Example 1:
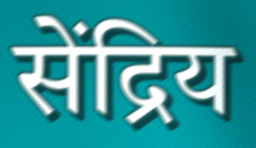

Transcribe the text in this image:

सेंद्रिय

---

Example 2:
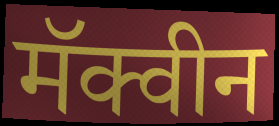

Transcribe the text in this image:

मॅक्वीन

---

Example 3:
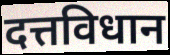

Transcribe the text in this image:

दत्तविधान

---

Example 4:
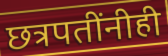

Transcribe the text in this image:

छत्रपतींनीही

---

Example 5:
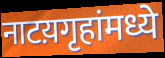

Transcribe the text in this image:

नाटय़गृहांमध्ये